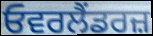
ਓਵਰਲੈਂਡਰਜ਼